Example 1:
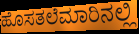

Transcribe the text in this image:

ಹೊಸತಲೆಮಾರಿನಲ್ಲಿ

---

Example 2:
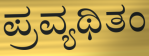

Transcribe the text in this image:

ಪ್ರವ್ಯಥಿತಂ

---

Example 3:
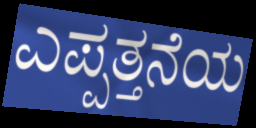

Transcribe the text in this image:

ಎಪ್ಪತ್ತನೆಯ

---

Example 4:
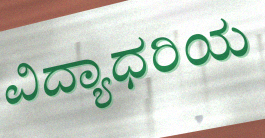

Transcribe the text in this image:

ವಿದ್ಯಾಧರಿಯ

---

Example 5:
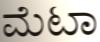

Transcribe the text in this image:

ಮೆಟಾ